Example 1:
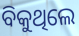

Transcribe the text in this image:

ବିକୁଥିଲେ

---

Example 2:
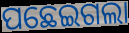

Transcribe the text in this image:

ପଛେଇଗଲା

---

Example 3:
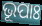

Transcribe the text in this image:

ଭୂପାଃ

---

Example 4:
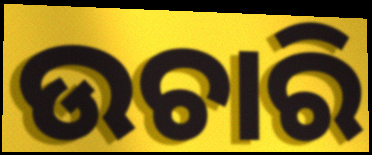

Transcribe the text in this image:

ଉଚାରି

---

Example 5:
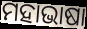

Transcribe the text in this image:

ମହାଭାଷା